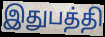
இதுபத்தி